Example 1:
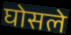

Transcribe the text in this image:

घोसले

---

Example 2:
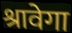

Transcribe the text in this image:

श्रावेगा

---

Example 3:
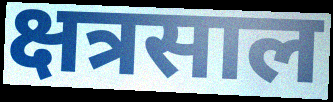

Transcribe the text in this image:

क्षत्रसाल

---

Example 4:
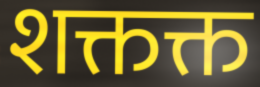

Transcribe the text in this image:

शक्तक्त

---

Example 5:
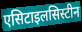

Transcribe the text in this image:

एसिटाइलसिस्टीन